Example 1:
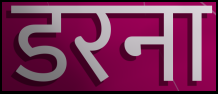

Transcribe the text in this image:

डरना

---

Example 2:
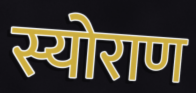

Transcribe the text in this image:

स्योराण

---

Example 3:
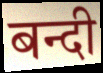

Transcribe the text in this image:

बन्दी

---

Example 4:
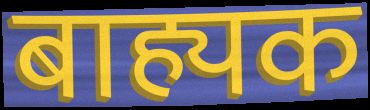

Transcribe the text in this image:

बाह्यक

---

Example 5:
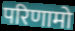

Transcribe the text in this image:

परिणामो